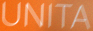
UNITA